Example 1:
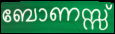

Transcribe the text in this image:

ബോണസ്സ്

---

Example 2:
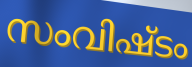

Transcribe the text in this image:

സംവിഷ്ടം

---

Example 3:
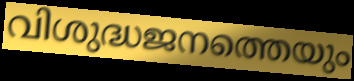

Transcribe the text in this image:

വിശുദ്ധജനത്തെയും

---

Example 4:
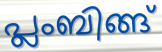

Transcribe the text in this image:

പ്ലംബിങ്ങ്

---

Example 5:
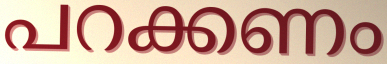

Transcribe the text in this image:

പറക്കണം